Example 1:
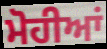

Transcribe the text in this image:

ਮੋਹੀਆਂ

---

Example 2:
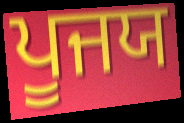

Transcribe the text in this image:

ਪੂਜਯ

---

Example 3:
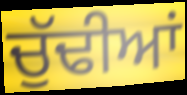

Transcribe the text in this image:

ਚੁੱਢੀਆਂ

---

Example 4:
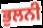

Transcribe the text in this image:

ਭੁਲਨੀ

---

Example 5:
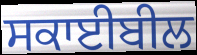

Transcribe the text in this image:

ਸਕਾਈਬੀਲ